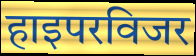
हाइपरविजर